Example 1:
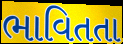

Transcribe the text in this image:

ભાવિતતા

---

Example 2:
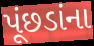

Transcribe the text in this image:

પૂંછડાંના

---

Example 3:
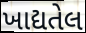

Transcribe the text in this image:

ખાદ્યતેલ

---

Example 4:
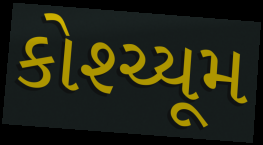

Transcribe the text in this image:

કોશ્ચ્યૂમ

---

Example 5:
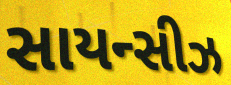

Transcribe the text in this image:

સાયન્સીઝ